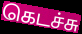
கெடச்சு